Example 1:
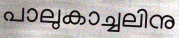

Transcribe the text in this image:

പാലുകാച്ചലിനു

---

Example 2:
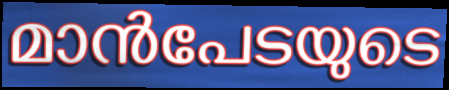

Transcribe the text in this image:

മാൻപേടയുടെ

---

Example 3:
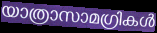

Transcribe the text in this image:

യാത്രാസാമഗ്രികൾ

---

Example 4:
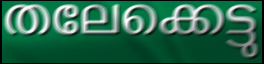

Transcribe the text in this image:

തലേക്കെട്ടു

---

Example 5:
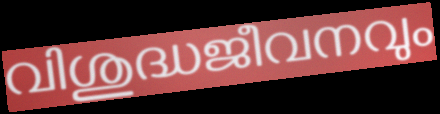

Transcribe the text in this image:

വിശുദ്ധജീവനവും